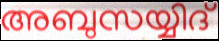
അബുസയ്യിദ്